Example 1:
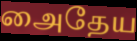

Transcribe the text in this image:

அைதேய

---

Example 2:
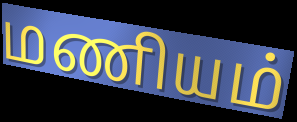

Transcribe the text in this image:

மணியம்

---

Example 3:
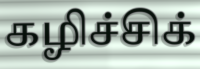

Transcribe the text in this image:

கழிச்சிக்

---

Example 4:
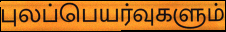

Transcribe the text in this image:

புலப்பெயர்வுகளும்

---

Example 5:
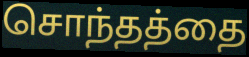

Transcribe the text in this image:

சொந்தத்தை